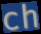
ch